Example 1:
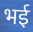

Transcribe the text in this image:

भई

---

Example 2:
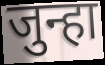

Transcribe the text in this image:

जुन्हा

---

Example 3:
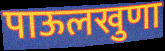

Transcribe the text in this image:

पाऊलखुणा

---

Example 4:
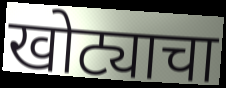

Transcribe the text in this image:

खोट्याचा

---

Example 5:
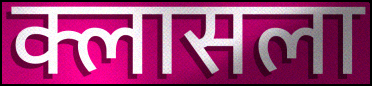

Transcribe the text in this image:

क्लासला